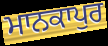
ਮਾਨਕਾਪੁਰ